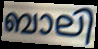
ബാലി